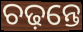
ଚଢ଼ନ୍ତେ